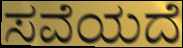
ಸವೆಯದೆ